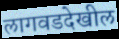
लागवडदेखील